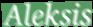
Aleksis